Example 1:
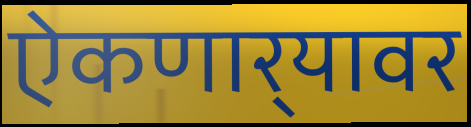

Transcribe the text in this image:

ऐकणार्‍यावर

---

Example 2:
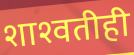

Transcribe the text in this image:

शाश्वतीही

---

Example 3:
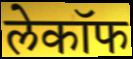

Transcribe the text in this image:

लेकॉफ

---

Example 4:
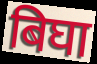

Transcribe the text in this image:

बिघा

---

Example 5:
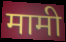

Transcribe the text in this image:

मामी